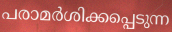
പരാമർശിക്കപ്പെടുന്ന